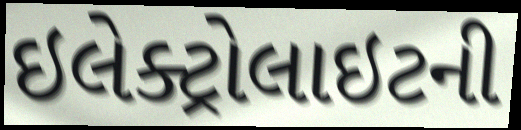
ઇલેક્ટ્રોલાઇટની